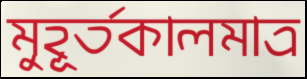
মুহূর্তকালমাত্র